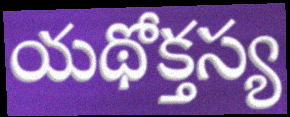
యథోక్తస్య